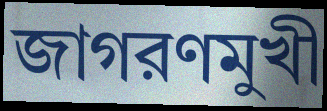
জাগরণমুখী